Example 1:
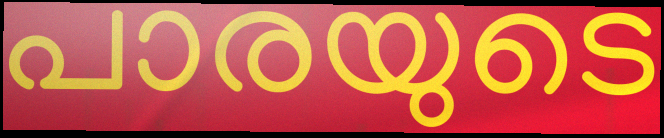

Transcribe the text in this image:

പാരയുടെ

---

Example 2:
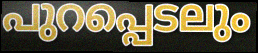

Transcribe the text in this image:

പുറപ്പെടലും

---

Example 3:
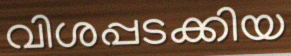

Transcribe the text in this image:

വിശപ്പടക്കിയ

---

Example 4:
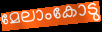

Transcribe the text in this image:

മേലാംകോടു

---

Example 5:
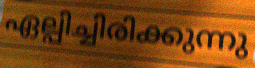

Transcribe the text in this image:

ഏല്പിച്ചിരിക്കുന്നു